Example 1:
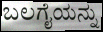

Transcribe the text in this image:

ಬಲಗೈಯನ್ನು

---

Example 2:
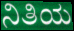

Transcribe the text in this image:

ನಿತಿಯ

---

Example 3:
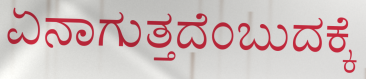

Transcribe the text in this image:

ಏನಾಗುತ್ತದೆಂಬುದಕ್ಕೆ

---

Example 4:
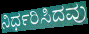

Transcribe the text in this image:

ನಿರ್ಧರಿಸಿದವು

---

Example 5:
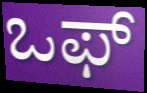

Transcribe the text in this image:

ಒಫ್